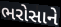
ભરોસાને